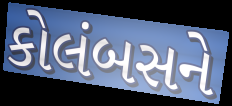
કોલંબસને